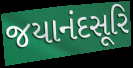
જયાનંદસૂરિ